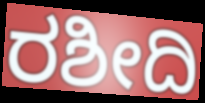
ರಶೀದಿ